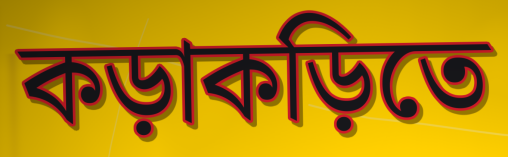
কড়াকড়িতে